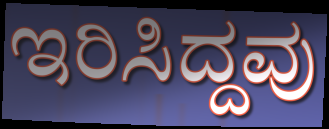
ಇರಿಸಿದ್ದವು